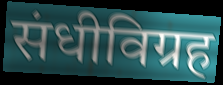
संधीविग्रह